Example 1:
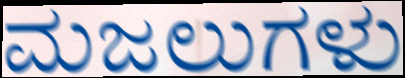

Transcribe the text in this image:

ಮಜಲುಗಳು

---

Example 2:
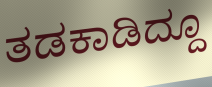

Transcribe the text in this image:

ತಡಕಾಡಿದ್ದೂ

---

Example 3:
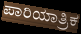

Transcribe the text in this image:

ಪಾರಿಯಾತ್ರಿಕ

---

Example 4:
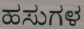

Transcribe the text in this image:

ಹಸುಗಳ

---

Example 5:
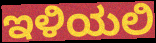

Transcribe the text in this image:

ಇಳಿಯಲಿ